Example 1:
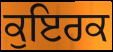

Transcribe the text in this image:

ਕੁਇਰਕ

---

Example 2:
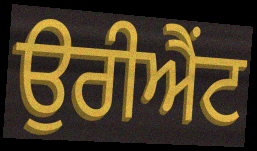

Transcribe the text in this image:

ਉਰੀਐਂਟ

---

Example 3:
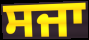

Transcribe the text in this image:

ਸਜਾ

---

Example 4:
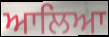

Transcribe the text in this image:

ਆਲਿਆ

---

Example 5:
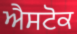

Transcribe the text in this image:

ਐਸਟੋਕ